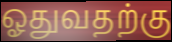
ஓதுவதற்கு